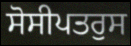
ਸੋਸੀਪਤਰੁਸ